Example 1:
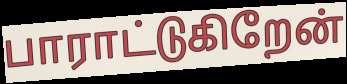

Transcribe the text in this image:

பாராட்டுகிறேன்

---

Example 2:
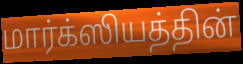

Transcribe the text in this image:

மார்க்ஸியத்தின்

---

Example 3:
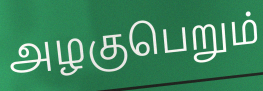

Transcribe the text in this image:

அழகுபெறும்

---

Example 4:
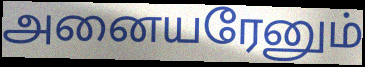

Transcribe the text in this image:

அனையரேனும்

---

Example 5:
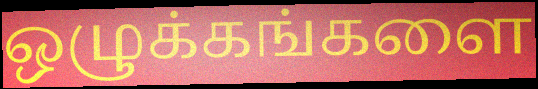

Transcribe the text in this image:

ஒழுக்கங்களை